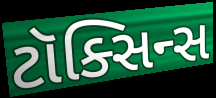
ટૉક્સિન્સ